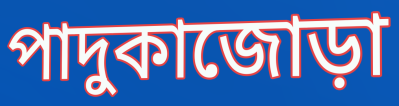
পাদুকাজোড়া